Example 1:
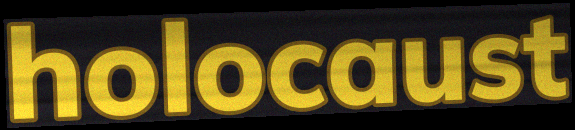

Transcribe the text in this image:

holocaust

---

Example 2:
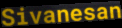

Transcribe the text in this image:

Sivanesan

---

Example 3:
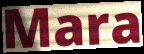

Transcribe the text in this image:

Mara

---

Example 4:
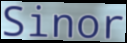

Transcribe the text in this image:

Sinor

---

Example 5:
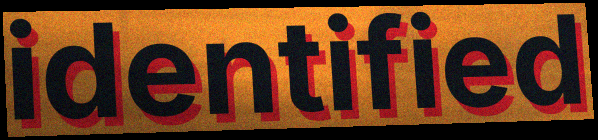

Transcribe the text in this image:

identified